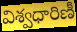
విశ్వధారిణీ